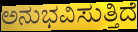
ಅನುಭವಿಸುತ್ತಿದೆ